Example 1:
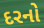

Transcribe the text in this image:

દરનો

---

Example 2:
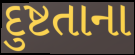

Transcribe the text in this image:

દુષ્ટતાના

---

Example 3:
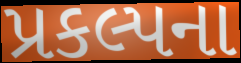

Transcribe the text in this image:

પ્રકલ્પના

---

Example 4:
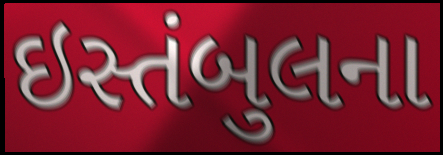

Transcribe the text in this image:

ઇસ્તંબુલના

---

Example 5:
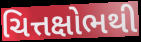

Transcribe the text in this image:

ચિત્તક્ષોભથી